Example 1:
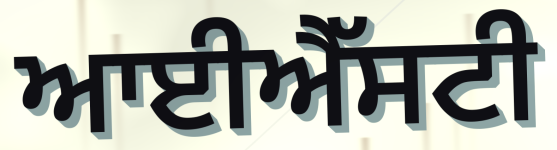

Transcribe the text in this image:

ਆਈਐੱਸਟੀ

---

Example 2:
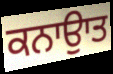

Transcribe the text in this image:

ਕਨਾਉਾਤ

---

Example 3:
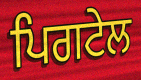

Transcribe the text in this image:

ਪਿਗਟੇਲ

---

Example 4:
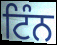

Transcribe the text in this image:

ਟਿੰਨ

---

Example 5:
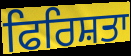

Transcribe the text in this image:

ਫਿਰਿਸ਼ਤਾ